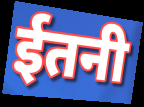
ईतनी